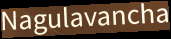
Nagulavancha